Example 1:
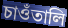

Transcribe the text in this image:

চাওঁতালি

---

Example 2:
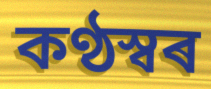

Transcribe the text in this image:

কণ্ঠস্বৰ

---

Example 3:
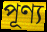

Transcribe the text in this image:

পূণ্য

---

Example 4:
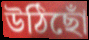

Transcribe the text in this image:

উঠিছোঁ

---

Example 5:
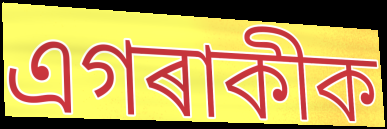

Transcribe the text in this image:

এগৰাকীক